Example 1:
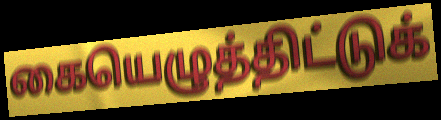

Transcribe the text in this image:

கையெழுத்திட்டுக்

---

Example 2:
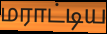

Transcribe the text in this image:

மராட்டிய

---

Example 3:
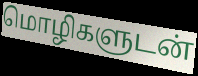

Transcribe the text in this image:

மொழிகளுடன்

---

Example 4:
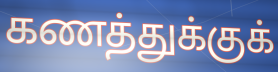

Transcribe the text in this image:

கணத்துக்குக்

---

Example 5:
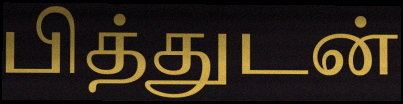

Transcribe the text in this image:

பித்துடன்